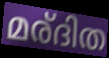
മര്ദിത